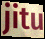
jitu